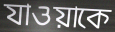
যাওয়াকে